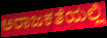
ಅರಾಜಕತೆಯಲ್ಲಿ